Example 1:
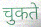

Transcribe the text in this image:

चुकते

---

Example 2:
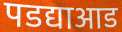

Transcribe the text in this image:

पडद्याआड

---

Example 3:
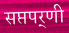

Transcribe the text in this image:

सप्तपर्णी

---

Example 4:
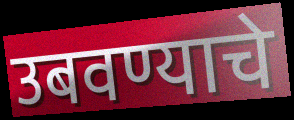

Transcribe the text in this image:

उबवण्याचे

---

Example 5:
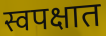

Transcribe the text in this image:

स्वपक्षात